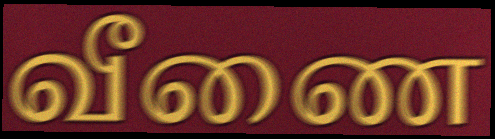
வீணை